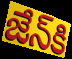
జేన్‌కి